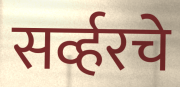
सर्व्हरचे